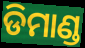
ଡିମାଣ୍ଡ